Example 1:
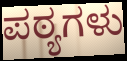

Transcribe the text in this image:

ಪಠ್ಯಗಳು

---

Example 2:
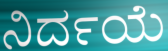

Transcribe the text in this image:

ನಿರ್ದಯೆ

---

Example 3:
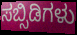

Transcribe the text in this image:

ಸಬ್ಸಿಡಿಗಳು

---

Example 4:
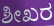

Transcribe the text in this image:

ಶೀಖರ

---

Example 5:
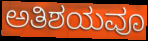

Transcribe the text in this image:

ಅತಿಶಯವೂ